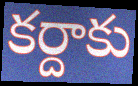
కర్దాకు